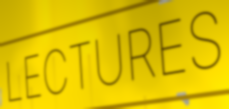
LECTURES